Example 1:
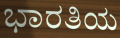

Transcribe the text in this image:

ಭಾರತಿಯ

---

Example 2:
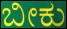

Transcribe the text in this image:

ಬೀಕು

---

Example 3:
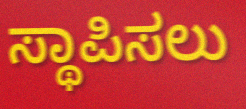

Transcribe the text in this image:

ಸ್ಥಾಪಿಸಲು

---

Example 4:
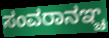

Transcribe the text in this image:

ಸಂವರಾನಞ್ಚ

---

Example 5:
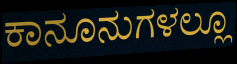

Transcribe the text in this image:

ಕಾನೂನುಗಳಲ್ಲೂ